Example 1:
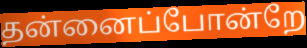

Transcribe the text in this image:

தன்னைப்போன்றே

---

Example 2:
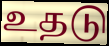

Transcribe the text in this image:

உதடு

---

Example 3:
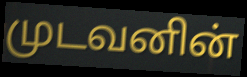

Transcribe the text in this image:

முடவனின்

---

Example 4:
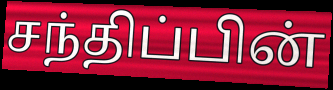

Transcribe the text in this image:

சந்திப்பின்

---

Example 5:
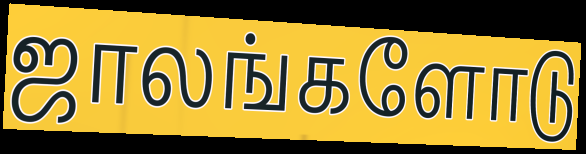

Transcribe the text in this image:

ஜாலங்களோடு